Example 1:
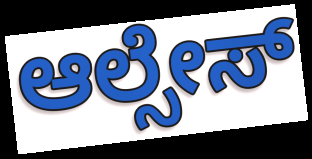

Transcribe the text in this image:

ಆಲ್ಸೇಸ್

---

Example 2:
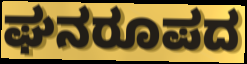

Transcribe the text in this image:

ಘನರೂಪದ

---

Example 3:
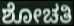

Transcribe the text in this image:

ಶೋಚತಿ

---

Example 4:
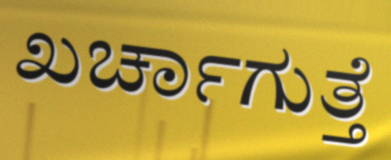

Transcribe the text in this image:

ಖರ್ಚಾಗುತ್ತೆ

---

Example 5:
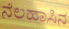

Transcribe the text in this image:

ನೆಲಹಾಸಿನ